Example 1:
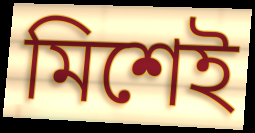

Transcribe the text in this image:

মিশেই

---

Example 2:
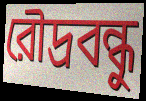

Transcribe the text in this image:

রৌদ্রবন্ধু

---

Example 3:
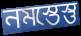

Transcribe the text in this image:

নমস্তেস্তু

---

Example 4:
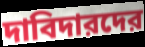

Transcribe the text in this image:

দাবিদারদের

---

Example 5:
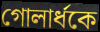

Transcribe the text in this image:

গোলার্ধকে